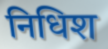
निधिश